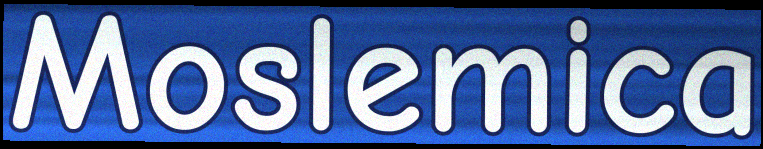
Moslemica